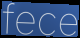
fece